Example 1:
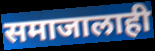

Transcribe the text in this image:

समाजालाही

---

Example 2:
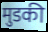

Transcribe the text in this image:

मुडकी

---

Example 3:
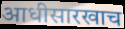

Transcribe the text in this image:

आधीसारखाच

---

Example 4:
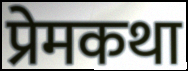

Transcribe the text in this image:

प्रेमकथा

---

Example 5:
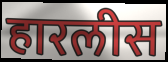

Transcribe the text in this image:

हारलीस